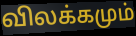
விலக்கமும்